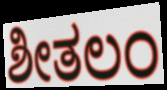
ಶೀತಲಂ